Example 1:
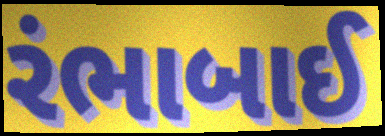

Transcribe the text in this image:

રંભાબાઈ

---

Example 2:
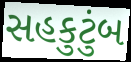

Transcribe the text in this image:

સહકુટુંબ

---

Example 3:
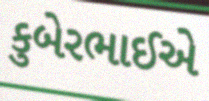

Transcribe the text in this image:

કુબેરભાઈએ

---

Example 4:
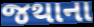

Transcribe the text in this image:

જથાના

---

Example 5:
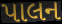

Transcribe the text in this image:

પાલન